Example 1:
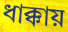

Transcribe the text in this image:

ধাক্কায়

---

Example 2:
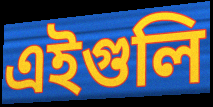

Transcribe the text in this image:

এইগুলি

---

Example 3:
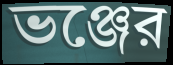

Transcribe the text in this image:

ভঞ্জের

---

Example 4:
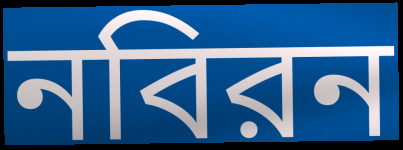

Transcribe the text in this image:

নবিরন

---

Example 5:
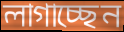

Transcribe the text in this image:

লাগাচ্ছেন